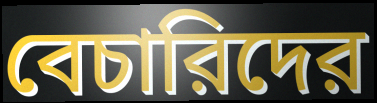
বেচারিদের